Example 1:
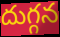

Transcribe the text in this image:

దుగ్గన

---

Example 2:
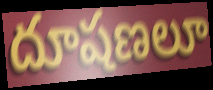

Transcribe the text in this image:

దూషణలూ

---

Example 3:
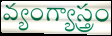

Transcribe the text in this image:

వ్యంగ్యాస్త్రం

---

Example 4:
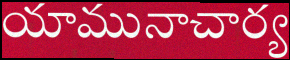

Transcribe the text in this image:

యామునాచార్య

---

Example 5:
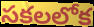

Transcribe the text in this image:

సకలలోక